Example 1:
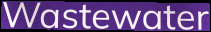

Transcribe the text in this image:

Wastewater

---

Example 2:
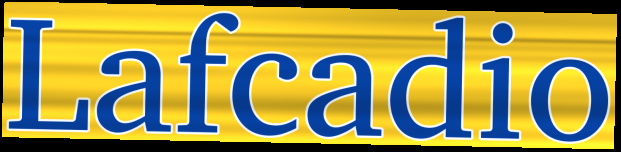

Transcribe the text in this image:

Lafcadio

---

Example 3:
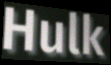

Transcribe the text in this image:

Hulk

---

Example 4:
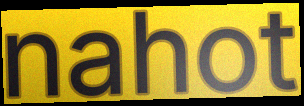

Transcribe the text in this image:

nahot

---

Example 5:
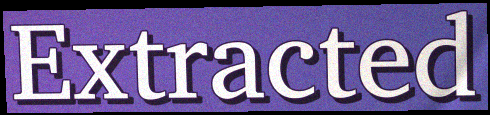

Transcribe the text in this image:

Extracted